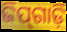
ଜିପ୍‍ଗାଡ଼ି